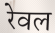
रेवल